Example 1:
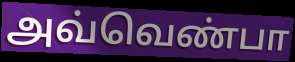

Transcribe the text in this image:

அவ்வெண்பா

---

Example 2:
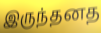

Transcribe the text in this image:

இருந்தனத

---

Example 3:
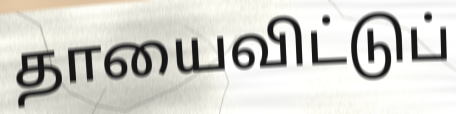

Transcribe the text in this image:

தாயைவிட்டுப்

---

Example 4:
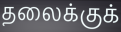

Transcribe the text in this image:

தலைக்குக்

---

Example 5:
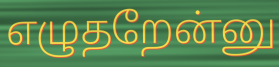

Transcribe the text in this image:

எழுதறேன்னு